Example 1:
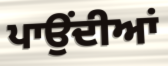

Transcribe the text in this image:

ਪਾਉਂਦੀਆਂ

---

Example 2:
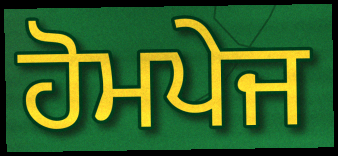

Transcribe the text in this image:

ਹੋਮਪੇਜ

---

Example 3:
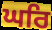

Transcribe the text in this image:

ਘਰਿ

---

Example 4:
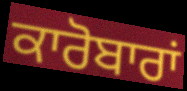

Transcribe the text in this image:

ਕਾਰੋਬਾਰਾਂ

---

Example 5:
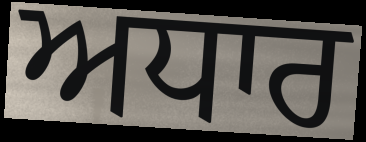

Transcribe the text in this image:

ਅਧਾਰ